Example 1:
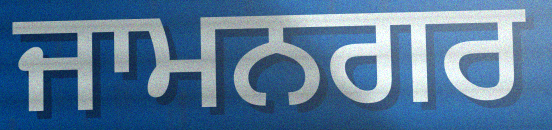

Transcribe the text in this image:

ਜਾਮਨਗਰ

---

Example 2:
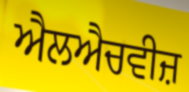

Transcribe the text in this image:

ਐਲਐਚਵੀਜ਼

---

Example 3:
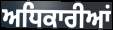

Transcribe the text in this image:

ਅਧਿਕਾਰੀਆਂ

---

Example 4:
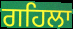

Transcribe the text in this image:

ਗਹਿਲਾ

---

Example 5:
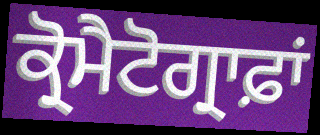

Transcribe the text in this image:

ਕ੍ਰੋਮੈਟੋਗ੍ਰਾਫ਼ਾਂ